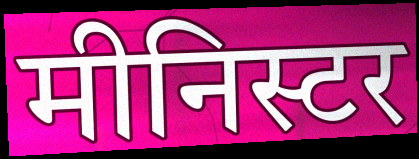
मीनिस्टर